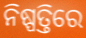
ନିଷ୍ପତ୍ତିରେ